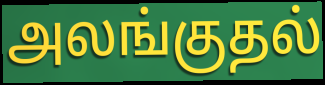
அலங்குதல்